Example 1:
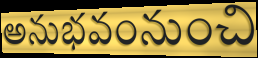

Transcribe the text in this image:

అనుభవంనుంచి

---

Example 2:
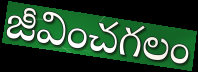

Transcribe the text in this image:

జీవించగలం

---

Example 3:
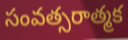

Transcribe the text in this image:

సంవత్సరాత్మక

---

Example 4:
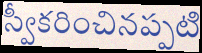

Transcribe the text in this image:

స్వీకరించినప్పటి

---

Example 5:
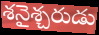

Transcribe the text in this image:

శనైశ్చరుడు